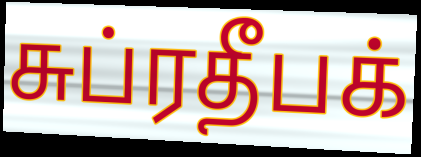
சுப்ரதீபக்